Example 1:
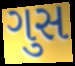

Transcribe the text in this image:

ગુસ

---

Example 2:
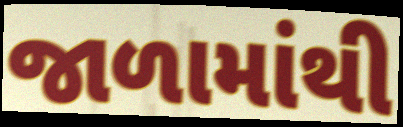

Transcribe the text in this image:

જાળામાંથી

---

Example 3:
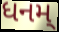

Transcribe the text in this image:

ધનમ્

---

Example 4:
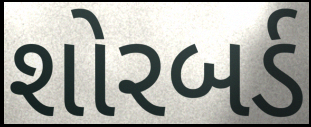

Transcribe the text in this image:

શોરબર્ડ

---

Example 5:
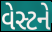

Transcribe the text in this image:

વેસ્ટને